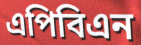
এপিবিএন